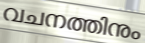
വചനത്തിനും